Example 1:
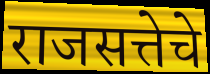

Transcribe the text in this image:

राजसत्तेचे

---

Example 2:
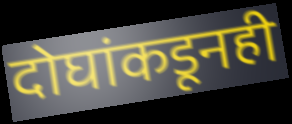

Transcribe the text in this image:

दोघांकडूनही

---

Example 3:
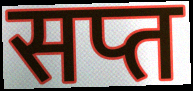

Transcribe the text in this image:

सप्त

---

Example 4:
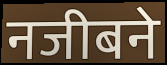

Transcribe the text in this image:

नजीबने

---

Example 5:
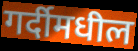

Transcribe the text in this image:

गर्दीमधील